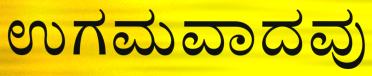
ಉಗಮವಾದವು